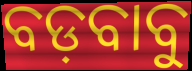
ବଡ଼ବାବୁ